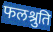
फलश्रुति